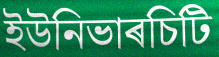
ইউনিভাৰচিটি